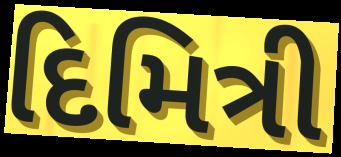
દિમિત્રી